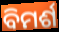
ବିମର୍ଶ